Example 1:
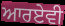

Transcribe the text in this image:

ਆਰਏਵੀ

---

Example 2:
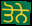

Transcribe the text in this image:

ਤੋਨੇ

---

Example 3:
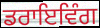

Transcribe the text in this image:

ਡਰਾਇਵਿੰਗ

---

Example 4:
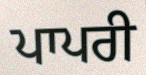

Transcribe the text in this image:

ਪਾਪਰੀ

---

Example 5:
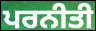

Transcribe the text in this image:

ਪਰਨੀਤੀ